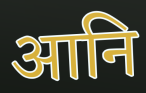
आनि